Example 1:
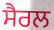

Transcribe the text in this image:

ਸੈਰਲ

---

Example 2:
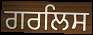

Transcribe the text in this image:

ਗਰਲਿਸ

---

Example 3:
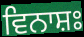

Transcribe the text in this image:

ਵਿਨਾਸ਼ਃ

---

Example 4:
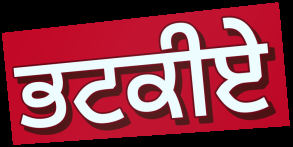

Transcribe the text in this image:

ਭਟਕੀਏ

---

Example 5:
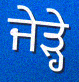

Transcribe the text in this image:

ਜੇੜ੍ਹੇ